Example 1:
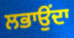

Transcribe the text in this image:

ਲਭਾਉਂਦਾ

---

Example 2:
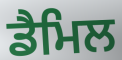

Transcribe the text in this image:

ਡੈਮਿਲ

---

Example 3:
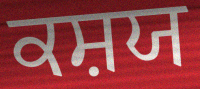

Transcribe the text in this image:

ਕਸ਼ਯ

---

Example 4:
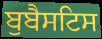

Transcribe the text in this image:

ਬੁਬੈਸਟਿਸ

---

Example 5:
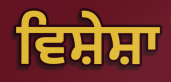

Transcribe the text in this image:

ਵਿਸ਼ੇਸ਼ਾ